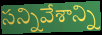
సన్నివేశాన్ని